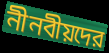
নীনবীয়দের